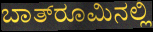
ಬಾತ್‌ರೂಮಿನಲ್ಲಿ